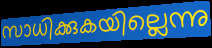
സാധിക്കുകയില്ലെന്നു